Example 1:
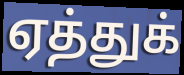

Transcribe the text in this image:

ஏத்துக்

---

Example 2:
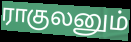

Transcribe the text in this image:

ராகுலனும்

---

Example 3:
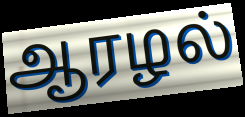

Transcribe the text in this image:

ஆரழல்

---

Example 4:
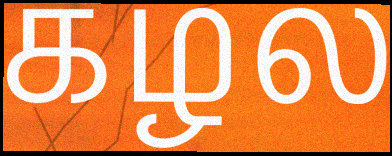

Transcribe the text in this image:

கழல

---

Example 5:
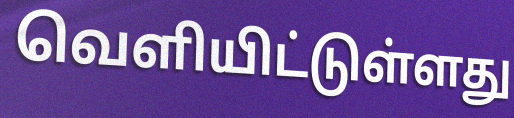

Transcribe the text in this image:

வெளியிட்டுள்ளது